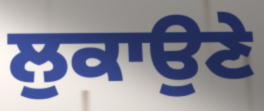
ਲੁਕਾਉਣੇ